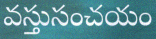
వస్తుసంచయం